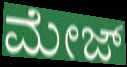
ಮೇಜ್